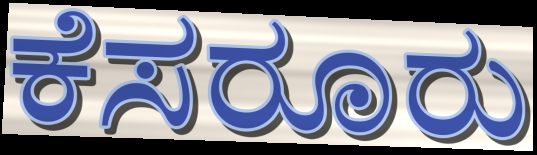
ಕೆಸರೂರು